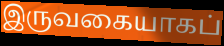
இருவகையாகப்